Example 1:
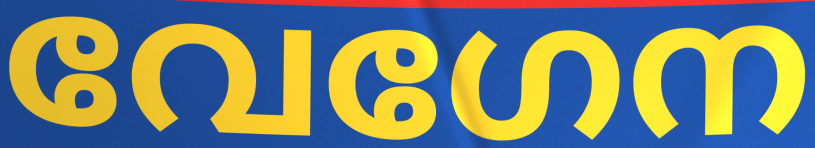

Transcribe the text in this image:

വേഗേന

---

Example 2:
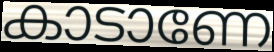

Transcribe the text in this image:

കാടാണേ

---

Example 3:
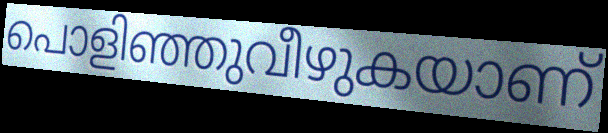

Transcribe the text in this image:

പൊളിഞ്ഞുവീഴുകയാണ്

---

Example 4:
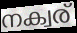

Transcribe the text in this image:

നക്വര്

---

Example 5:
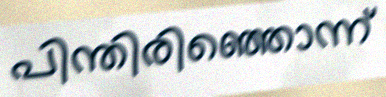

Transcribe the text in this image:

പിന്തിരിഞ്ഞൊന്ന്